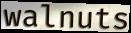
walnuts